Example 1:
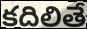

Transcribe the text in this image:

కదిలితే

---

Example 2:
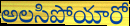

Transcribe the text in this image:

అలసిపోయారో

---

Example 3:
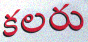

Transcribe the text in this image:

కలరు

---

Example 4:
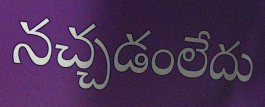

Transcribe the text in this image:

నచ్చడంలేదు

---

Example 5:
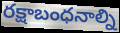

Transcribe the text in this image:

రక్షాబంధనాల్ని